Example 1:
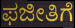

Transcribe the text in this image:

ಫಜೀತಿಗೆ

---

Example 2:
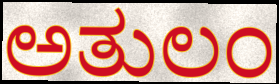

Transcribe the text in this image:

ಅತುಲಂ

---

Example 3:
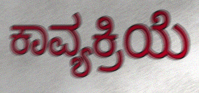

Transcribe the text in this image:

ಕಾವ್ಯಕ್ರಿಯೆ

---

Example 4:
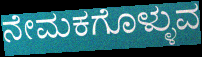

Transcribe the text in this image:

ನೇಮಕಗೊಳ್ಳುವ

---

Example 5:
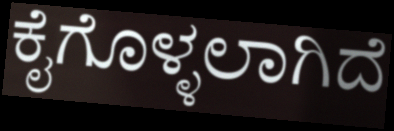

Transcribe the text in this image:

ಕೈಗೊಳ್ಳಲಾಗಿದೆ